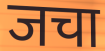
जचा